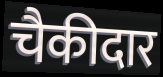
चैकीदार